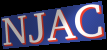
NJAC